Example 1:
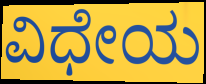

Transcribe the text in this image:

ವಿಧೇಯ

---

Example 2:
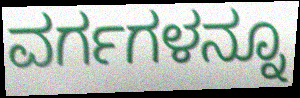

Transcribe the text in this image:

ವರ್ಗಗಳನ್ನೂ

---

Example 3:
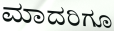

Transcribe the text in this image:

ಮಾದರಿಗೂ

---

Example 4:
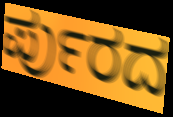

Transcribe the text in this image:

ರ್ಪುರದ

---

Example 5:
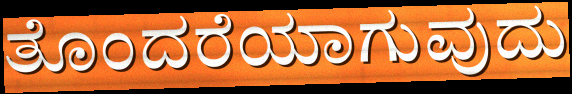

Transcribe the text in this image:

ತೊಂದರೆಯಾಗುವುದು